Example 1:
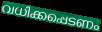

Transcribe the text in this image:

വധിക്കപ്പെടണം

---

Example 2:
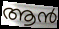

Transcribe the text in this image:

ആൻ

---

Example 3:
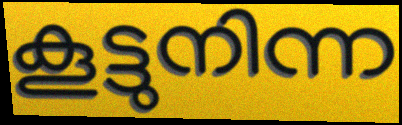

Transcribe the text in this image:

കൂട്ടുനിന്ന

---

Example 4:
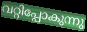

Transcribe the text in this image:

വറ്റിപ്പോകുന്നു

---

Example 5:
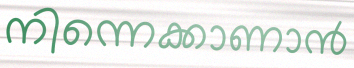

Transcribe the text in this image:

നിന്നെക്കാണാൻ